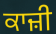
ਕਾਜ਼ੀ